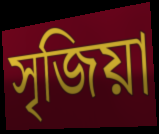
সৃজিয়া